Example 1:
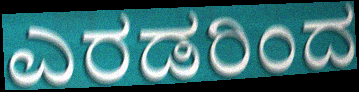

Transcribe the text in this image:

ಎರಡರಿಂದ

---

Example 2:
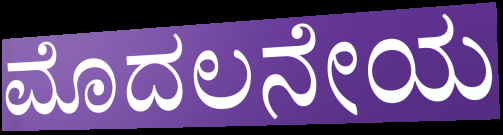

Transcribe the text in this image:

ಮೊದಲನೇಯ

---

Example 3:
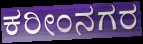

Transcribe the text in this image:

ಕರೀಂನಗರ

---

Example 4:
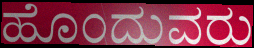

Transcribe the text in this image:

ಹೊಂದುವರು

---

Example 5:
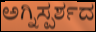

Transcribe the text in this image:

ಅಗ್ನಿಸ್ಪರ್ಶದ